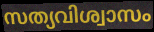
സത്യവിശ്വാസം